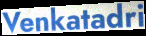
Venkatadri